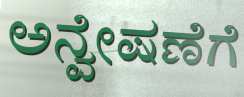
ಅನ್ವೇಷಣೆಗೆ